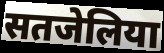
सतजेलिया